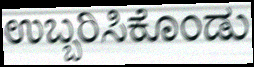
ಉಬ್ಬರಿಸಿಕೊಂಡು